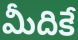
మీదికే